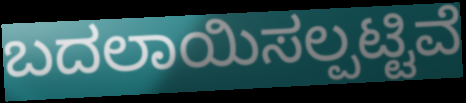
ಬದಲಾಯಿಸಲ್ಪಟ್ಟಿವೆ